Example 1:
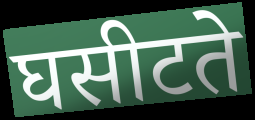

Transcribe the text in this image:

घसीटते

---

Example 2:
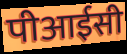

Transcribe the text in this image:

पीआईसी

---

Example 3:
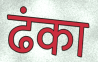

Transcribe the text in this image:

ढंका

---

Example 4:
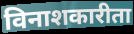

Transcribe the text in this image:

विनाशकारीता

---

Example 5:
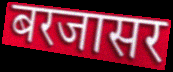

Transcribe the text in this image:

बरजासर